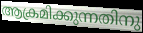
ആക്രമിക്കുന്നതിനു